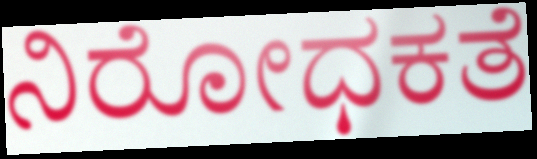
ನಿರೋಧಕತೆ